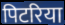
पिटरिया